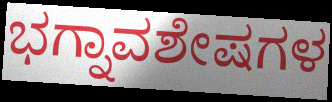
ಭಗ್ನಾವಶೇಷಗಳ